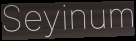
Seyinum